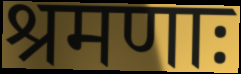
श्रमणाः